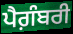
ਪੈਗ਼ੰਬਰੀ